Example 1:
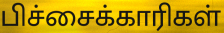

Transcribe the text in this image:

பிச்சைக்காரிகள்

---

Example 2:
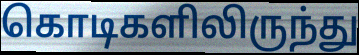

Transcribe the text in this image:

கொடிகளிலிருந்து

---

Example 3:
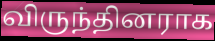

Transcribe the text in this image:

விருந்தினராக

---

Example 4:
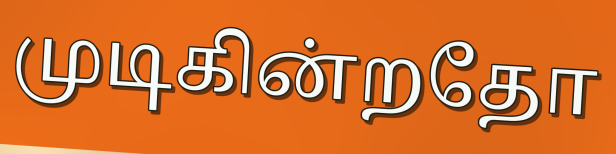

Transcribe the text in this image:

முடிகின்றதோ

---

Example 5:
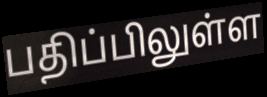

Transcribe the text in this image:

பதிப்பிலுள்ள